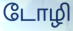
டோழி